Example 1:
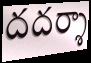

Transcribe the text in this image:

దదర్శా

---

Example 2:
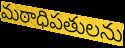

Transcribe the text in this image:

మఠాధిపతులను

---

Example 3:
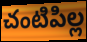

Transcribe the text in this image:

చంటిపిల్ల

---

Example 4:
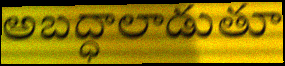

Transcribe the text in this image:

అబద్ధాలాడుతూ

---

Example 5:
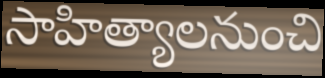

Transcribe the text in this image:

సాహిత్యాలనుంచి